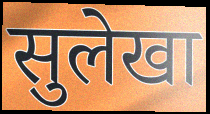
सुलेखा